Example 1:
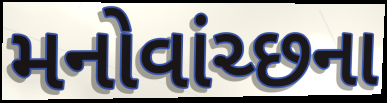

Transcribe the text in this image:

મનોવાંચ્છના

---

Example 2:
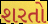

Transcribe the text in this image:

શરતો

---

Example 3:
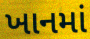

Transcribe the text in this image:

ખાનમાં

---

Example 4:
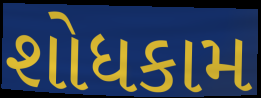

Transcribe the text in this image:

શોધકામ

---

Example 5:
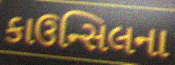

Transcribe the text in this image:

કાઉન્સિલના